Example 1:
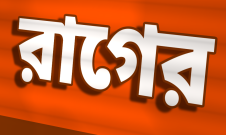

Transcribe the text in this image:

রাগের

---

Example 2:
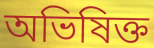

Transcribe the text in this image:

অভিষিক্ত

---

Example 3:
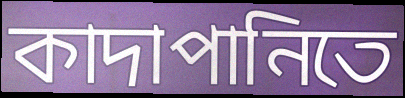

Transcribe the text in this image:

কাদাপানিতে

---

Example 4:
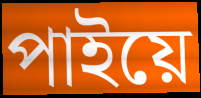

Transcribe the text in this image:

পাইয়ে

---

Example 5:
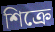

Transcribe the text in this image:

শিক্রে